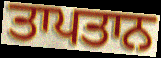
ਤਾਪਤਾਨ